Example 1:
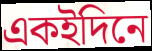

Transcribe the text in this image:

একইদিনে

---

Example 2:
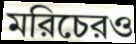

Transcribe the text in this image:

মরিচেরও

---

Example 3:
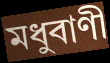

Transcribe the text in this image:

মধুবাণী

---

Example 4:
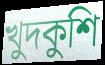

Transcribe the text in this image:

খুদকুশি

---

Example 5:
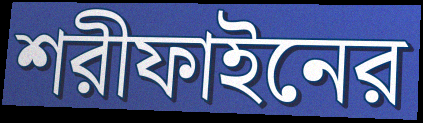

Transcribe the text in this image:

শরীফাইনের